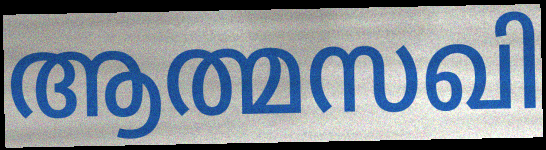
ആത്മസഖി